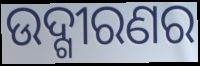
ଉଦ୍ଗୀରଣର